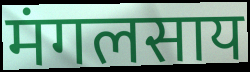
मंगलसाय